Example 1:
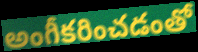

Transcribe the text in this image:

అంగీకరించడంతో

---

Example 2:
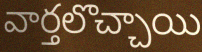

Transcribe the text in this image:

వార్తలొచ్చాయి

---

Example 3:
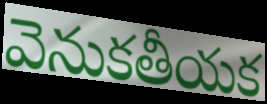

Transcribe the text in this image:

వెనుకతీయక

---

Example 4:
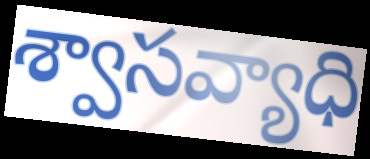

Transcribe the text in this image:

శ్వాసవ్యాధి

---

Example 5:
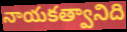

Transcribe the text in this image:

నాయకత్వానిది